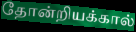
தோன்றியக்கால்